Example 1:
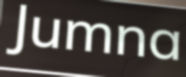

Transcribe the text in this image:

Jumna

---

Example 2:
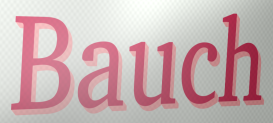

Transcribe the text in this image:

Bauch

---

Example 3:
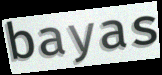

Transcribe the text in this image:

bayas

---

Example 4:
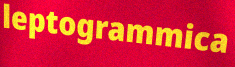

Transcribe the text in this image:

leptogrammica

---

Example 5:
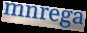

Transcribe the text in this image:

mnrega